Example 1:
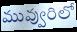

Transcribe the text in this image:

మువ్వురిలో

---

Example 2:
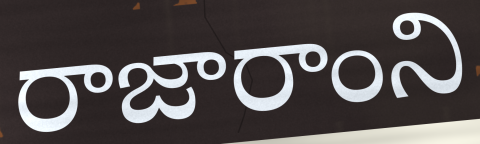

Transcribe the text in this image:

రాజారాంని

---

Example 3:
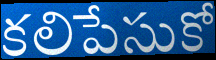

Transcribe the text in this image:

కలిపేసుకో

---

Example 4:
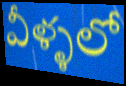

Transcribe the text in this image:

వీళ్ళలో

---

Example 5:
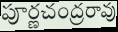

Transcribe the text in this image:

పూర్ణచంద్రరావు